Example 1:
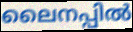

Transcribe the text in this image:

ലൈനപ്പിൽ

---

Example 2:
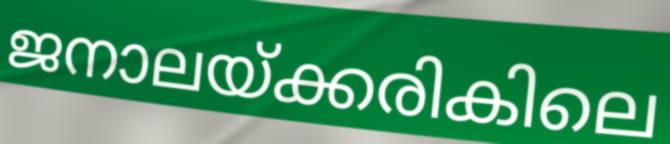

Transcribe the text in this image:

ജനാലയ്ക്കരികിലെ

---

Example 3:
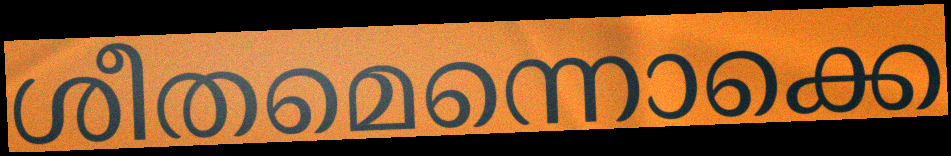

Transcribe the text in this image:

ശീതമെന്നൊക്കെ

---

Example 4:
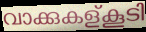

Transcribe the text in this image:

വാക്കുകള്കൂടി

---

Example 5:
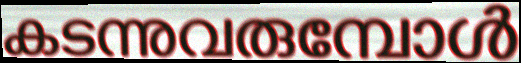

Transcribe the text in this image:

കടന്നുവരുമ്പോൾ